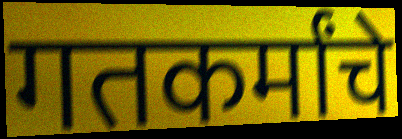
गतकर्मांचे